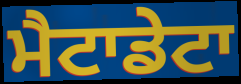
ਮੈਟਾਡੇਟਾ